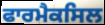
ਫਾਰਮੈਕਸਿਲ